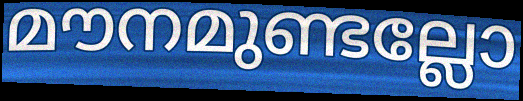
മൗനമുണ്ടല്ലോ